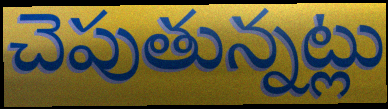
చెపుతున్నట్లు